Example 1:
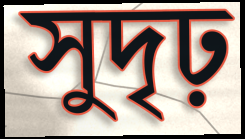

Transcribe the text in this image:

সুদৃঢ়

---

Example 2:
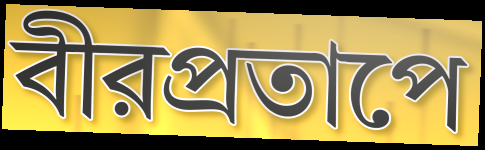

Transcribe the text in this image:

বীরপ্রতাপে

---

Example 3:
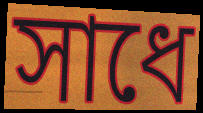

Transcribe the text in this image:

সাধে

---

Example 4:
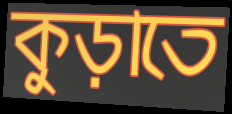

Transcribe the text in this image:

কুড়াতে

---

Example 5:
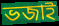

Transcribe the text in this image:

ভজাই